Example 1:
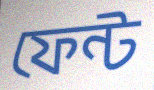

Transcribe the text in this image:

ফেন্ট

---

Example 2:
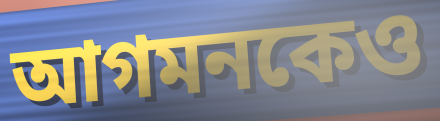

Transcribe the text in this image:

আগমনকেও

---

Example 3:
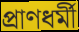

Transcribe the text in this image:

প্রাণধর্মী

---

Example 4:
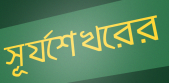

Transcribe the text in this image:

সূর্যশেখরের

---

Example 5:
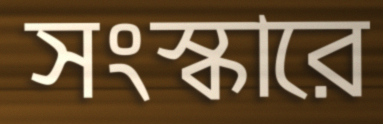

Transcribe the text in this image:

সংস্কারে